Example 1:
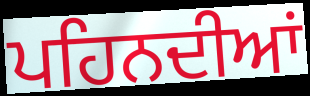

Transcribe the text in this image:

ਪਹਿਨਦੀਆਂ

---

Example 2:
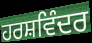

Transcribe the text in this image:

ਹਰਸ਼ਵਿੰਦਰ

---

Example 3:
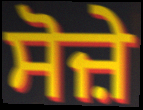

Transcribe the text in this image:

ਸੋਜ਼ੇ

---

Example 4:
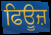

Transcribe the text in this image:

ਫਿਊਜ਼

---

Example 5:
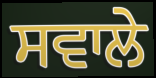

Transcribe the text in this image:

ਸਵਾਲੇ